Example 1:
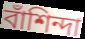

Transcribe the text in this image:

বাঁশিন্দা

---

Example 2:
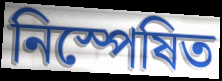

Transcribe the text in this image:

নিস্পেষিত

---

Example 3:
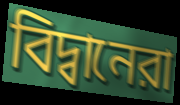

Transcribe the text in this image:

বিদ্বানেরা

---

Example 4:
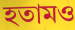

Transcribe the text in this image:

হতামও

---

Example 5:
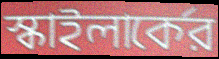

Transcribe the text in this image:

স্কাইলার্কের